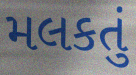
મલકતું